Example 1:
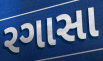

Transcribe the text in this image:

રગાસા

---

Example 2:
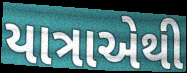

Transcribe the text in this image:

યાત્રાએથી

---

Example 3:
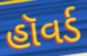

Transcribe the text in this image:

હૉવર્ડ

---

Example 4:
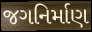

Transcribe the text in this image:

જગનિર્માણ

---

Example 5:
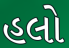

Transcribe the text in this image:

હલો